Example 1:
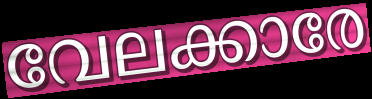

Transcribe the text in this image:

വേലക്കാരേ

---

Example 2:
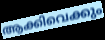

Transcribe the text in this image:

ആക്കിവെക്കും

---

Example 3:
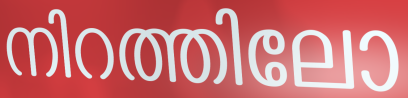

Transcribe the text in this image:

നിറത്തിലോ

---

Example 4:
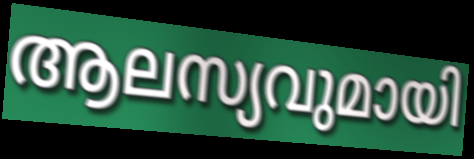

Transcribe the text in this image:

ആലസ്യവുമായി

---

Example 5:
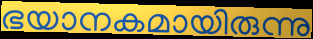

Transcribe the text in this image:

ഭയാനകമായിരുന്നു